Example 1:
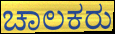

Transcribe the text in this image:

ಚಾಲಕರು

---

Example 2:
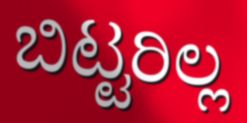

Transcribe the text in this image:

ಬಿಟ್ಟರಿಲ್ಲ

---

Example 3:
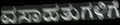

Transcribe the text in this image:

ವಸಾಹತುಗಳಿಗೆ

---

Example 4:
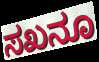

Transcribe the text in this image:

ಸಖನೂ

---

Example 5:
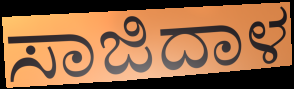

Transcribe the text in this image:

ಸಾಜಿದಾಳ